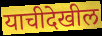
याचीदेखील